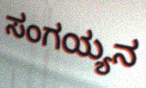
ಸಂಗಯ್ಯನ